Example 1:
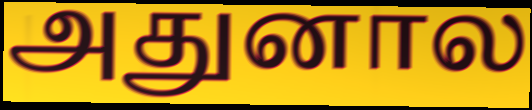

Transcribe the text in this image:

அதுனால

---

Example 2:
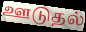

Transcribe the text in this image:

ஊடுதல்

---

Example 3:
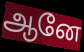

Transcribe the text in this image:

ஆனே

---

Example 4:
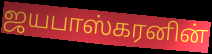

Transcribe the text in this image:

ஜயபாஸ்கரனின்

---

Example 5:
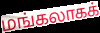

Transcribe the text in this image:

மங்கலாகக்